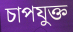
চাপযুক্ত